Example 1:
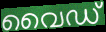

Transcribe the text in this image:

വൈഡ്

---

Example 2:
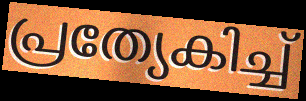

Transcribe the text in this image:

പ്രത്യേകിച്ച്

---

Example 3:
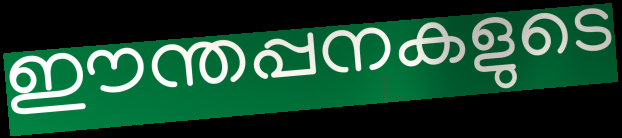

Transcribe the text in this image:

ഈന്തപ്പനകളുടെ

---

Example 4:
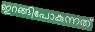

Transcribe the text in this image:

ഇറങ്ങിപോകുന്നത്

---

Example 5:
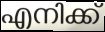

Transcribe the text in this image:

എനിക്ക്